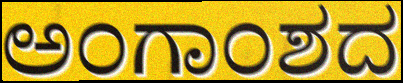
ಅಂಗಾಂಶದ